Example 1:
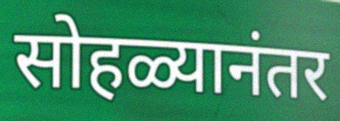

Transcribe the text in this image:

सोहळ्यानंतर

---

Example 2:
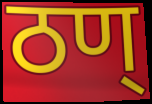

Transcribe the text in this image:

ठण्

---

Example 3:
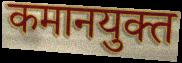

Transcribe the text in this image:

कमानयुक्त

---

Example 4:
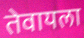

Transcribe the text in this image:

तेवायला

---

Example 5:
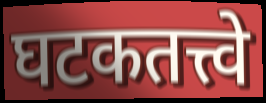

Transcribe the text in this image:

घटकतत्त्वे